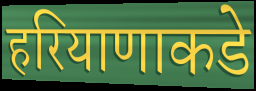
हरियाणाकडे